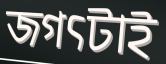
জগৎটাই